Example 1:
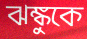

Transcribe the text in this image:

ঝঙ্কুকে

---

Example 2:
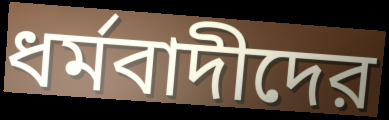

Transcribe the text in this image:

ধর্মবাদীদের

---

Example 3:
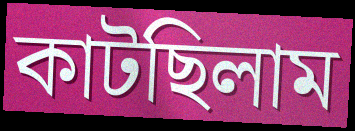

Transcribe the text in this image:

কাটছিলাম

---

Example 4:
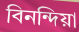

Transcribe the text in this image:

বিনন্দিয়া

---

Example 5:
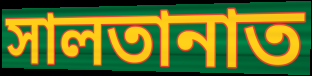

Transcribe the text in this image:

সালতানাত